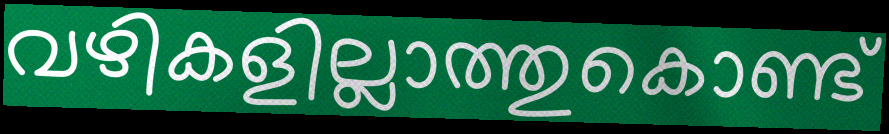
വഴികളില്ലാത്തുകൊണ്ട്